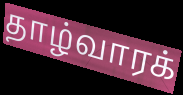
தாழ்வாரக்